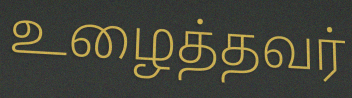
உழைத்தவர்